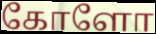
கோளோ